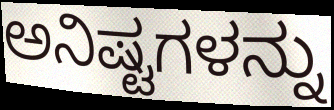
ಅನಿಷ್ಟಗಳನ್ನು